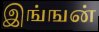
இங்ஙன்